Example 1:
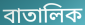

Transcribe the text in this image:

বাতালিক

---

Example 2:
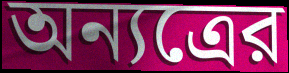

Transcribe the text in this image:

অন্যত্রের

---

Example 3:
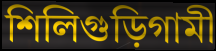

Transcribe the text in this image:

শিলিগুড়িগামী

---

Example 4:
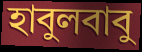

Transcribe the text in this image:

হাবুলবাবু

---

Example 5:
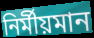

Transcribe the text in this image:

নির্মীয়মান